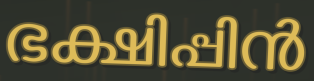
ഭക്ഷിപ്പിൻ